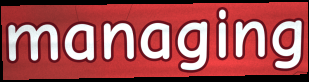
managing